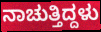
ನಾಚುತ್ತಿದ್ದಳು